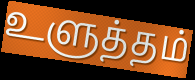
உளுத்தம்